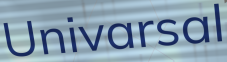
Univarsal